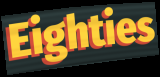
Eighties